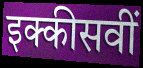
इक्‍कीसवीं